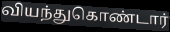
வியந்துகொண்டார்